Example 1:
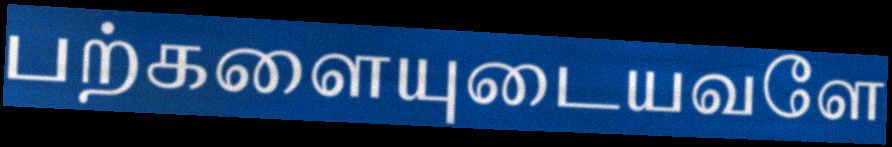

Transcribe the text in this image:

பற்களையுடையவளே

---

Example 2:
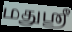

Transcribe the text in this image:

மதுஸ்ரீ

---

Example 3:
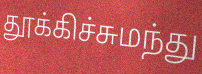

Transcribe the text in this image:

தூக்கிச்சுமந்து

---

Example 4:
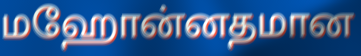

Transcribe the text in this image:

மஹோன்னதமான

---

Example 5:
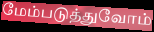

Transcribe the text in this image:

மேம்படுத்துவோம்